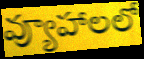
వ్యూహాలలో